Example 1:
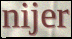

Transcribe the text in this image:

nijer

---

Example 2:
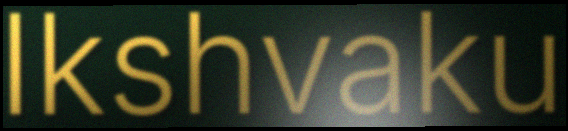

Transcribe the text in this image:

Ikshvaku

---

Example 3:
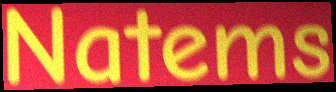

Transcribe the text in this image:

Natems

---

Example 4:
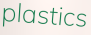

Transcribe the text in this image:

plastics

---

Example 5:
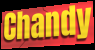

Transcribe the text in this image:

Chandy